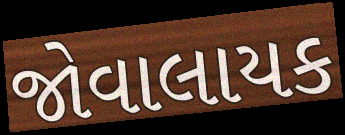
જોવાલાયક